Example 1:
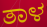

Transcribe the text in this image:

ತಾಳ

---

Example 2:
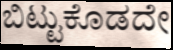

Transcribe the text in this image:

ಬಿಟ್ಟುಕೊಡದೇ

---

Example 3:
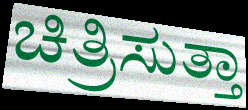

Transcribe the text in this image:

ಚಿತ್ರಿಸುತ್ತಾ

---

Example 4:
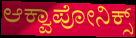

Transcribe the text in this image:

ಆಕ್ವಾಪೋನಿಕ್ಸ್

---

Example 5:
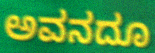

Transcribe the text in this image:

ಅವನದೂ